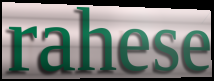
rahese